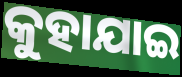
କୁହାଯାଇ